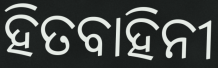
ହିତବାହିନୀ